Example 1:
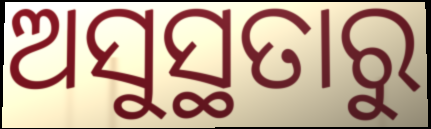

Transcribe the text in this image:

ଅସୁସ୍ଥତାରୁ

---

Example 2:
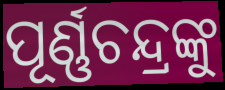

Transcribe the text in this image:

ପୂର୍ଣ୍ଣଚନ୍ଦ୍ରଙ୍କୁ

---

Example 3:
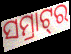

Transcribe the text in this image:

ସମ୍ରାଟ୍‌ର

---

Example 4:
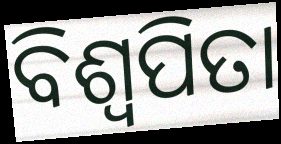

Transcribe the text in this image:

ବିଶ୍ଵପିତା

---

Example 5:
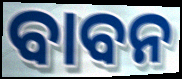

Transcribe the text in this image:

ବାବନ